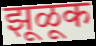
झूळूक